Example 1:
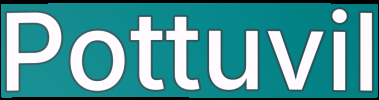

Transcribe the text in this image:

Pottuvil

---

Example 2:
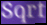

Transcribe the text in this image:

Sqrt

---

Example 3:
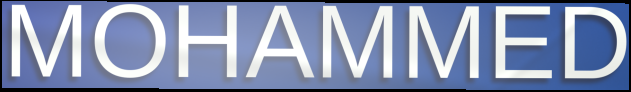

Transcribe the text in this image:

MOHAMMED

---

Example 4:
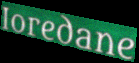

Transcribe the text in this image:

Ioredane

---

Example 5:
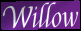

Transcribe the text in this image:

Willow